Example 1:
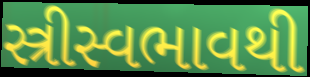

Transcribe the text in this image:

સ્ત્રીસ્વભાવથી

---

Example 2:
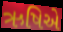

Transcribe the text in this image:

ઋષિએ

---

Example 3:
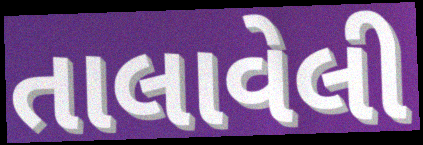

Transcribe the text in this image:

તાલાવેલી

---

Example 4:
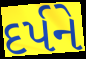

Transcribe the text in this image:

દર્પને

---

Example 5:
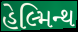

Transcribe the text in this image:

હેલ્મિન્થ